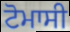
ਟੋਮਾਸੀ